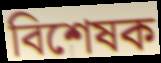
বিশেষক